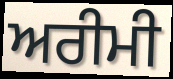
ਅਰੀਮੀ